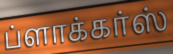
ப்ளாக்கர்ஸ்